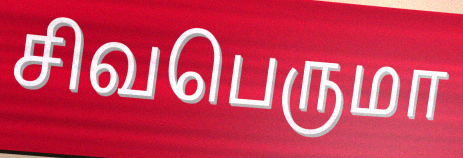
சிவபெருமா